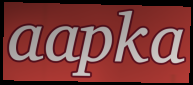
aapka